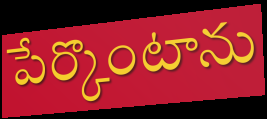
పేర్కొంటాను